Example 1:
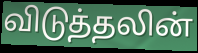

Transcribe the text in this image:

விடுத்தலின்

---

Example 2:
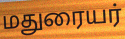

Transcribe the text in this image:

மதுரையர்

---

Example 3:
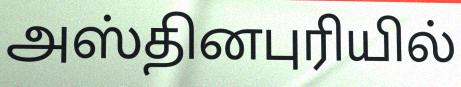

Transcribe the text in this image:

அஸ்தினபுரியில்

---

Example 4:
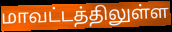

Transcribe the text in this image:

மாவட்டத்திலுள்ள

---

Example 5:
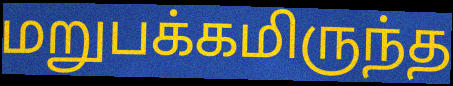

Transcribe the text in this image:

மறுபக்கமிருந்த